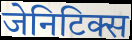
जेनिटिक्स